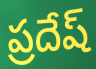
ప్రదేష్